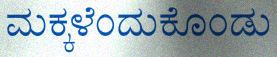
ಮಕ್ಕಳೆಂದುಕೊಂಡು